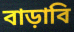
বাড়াবি